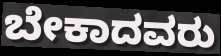
ಬೇಕಾದವರು